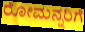
ರೋಮನ್ನರಿಗೆ